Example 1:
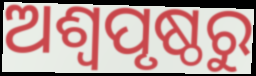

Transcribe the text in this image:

ଅଶ୍ଵପୃଷ୍ଠରୁ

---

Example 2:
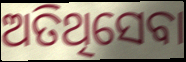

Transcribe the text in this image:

ଅତିଥିସେବା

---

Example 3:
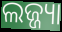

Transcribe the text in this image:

ଲଜ୍ଜ୍ୟା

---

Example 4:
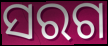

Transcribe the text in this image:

ସରଗ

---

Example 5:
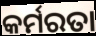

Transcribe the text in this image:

କର୍ମରତା